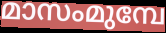
മാസംമുമ്പേ